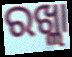
ରଖ୍ଲା